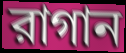
রাগান